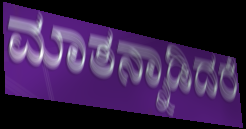
ಮಾತನ್ನಾಡಿದರೆ